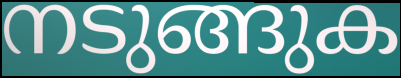
നടുങ്ങുക